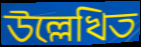
উল্লেখিত